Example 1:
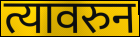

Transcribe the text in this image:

त्यावरुन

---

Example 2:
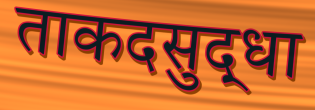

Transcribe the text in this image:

ताकदसुद्धा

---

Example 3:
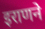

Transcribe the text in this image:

इराणने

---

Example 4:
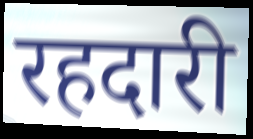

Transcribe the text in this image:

रहदारी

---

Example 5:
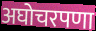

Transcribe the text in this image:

अघोचरपणा